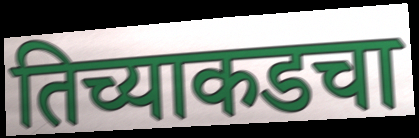
तिच्याकडचा